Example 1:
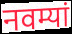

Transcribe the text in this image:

नवम्यां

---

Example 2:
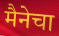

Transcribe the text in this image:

मैनेचा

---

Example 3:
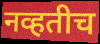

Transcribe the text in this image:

नव्हतीच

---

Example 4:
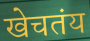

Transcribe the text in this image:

खेचतंय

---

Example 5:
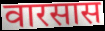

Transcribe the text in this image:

वारसास